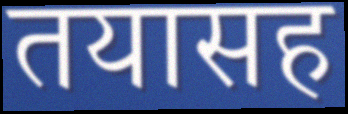
तयासह